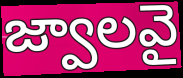
జ్వాలవై